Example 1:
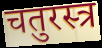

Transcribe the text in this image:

चतुरस्त्र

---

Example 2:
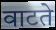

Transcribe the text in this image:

वाटते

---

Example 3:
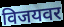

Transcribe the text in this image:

विजयवर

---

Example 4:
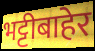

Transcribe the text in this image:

भट्टीबाहेर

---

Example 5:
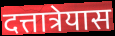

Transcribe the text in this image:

दत्तात्रेयास